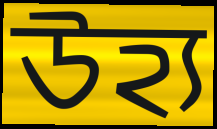
উহ্য